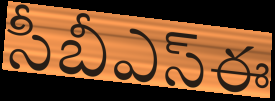
సీబీఎస్ఈ